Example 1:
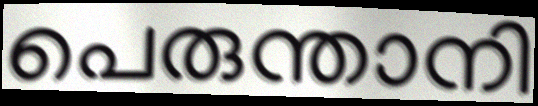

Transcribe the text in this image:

പെരുന്താനി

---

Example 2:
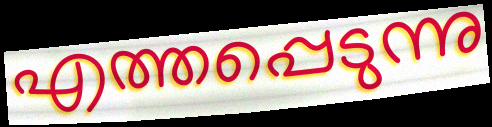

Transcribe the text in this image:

എത്തപ്പെടുന്നു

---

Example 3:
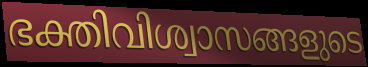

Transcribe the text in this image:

ഭക്തിവിശ്വാസങ്ങളുടെ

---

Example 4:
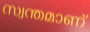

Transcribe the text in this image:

സ്വന്തമാണ്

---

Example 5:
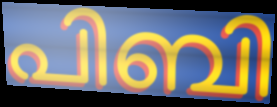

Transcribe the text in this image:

പിബി